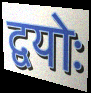
द्वयोः